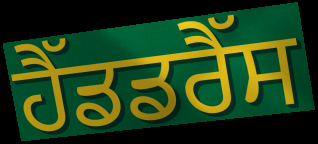
ਹੈੱਡਡਰੈੱਸ